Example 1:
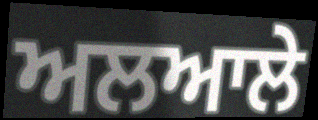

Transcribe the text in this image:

ਅਲਆਲੇ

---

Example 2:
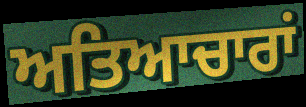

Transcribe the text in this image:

ਅਤਿਆਚਾਰਾਂ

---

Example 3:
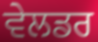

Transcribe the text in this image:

ਵੇਲਡਰ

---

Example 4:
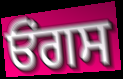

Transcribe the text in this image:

ਓਂਗਸ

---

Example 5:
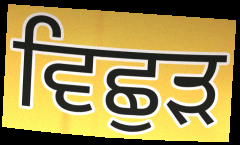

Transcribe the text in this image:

ਵਿਛੁੜ